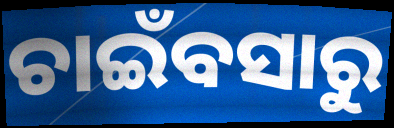
ଚାଇଁବସାରୁ